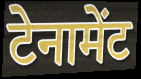
टेनामेंट